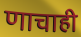
णाचाही